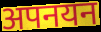
अपनयन